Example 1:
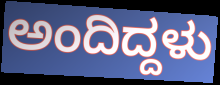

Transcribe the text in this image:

ಅಂದಿದ್ದಳು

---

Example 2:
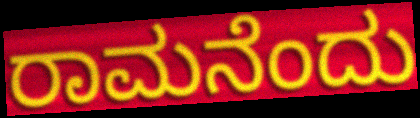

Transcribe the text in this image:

ರಾಮನೆಂದು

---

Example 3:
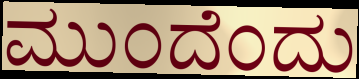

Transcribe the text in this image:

ಮುಂದೆಂದು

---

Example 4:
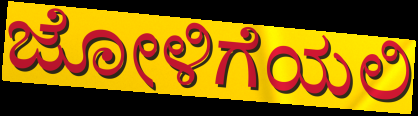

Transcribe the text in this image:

ಜೋಳಿಗೆಯಲಿ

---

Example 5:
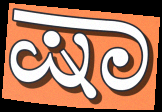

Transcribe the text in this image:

ಷಾ